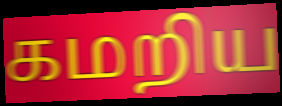
கமறிய